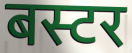
बस्टर